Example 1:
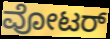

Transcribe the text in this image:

ವೋಟರ್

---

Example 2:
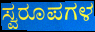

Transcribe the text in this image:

ಸ್ವರೂಪಗಳ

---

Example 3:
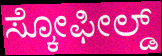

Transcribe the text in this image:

ಸ್ಕೋಫೀಲ್ಡ್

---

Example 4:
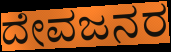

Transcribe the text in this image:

ದೇವಜನರ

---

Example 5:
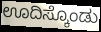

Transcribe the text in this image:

ಊದಿಸ್ಕೊಂಡು